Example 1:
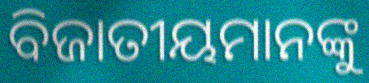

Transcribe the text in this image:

ବିଜାତୀୟମାନଙ୍କୁ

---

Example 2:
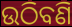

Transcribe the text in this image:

ଉଠିବଣି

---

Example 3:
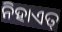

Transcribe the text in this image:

ନିହାଏତ୍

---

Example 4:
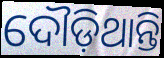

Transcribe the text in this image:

ଦୌଡ଼ିଥାନ୍ତି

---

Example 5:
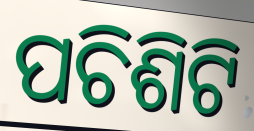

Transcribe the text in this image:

ପଚିଶିଟି